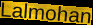
Lalmohan